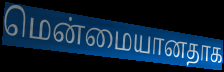
மென்மையானதாக